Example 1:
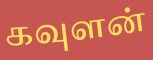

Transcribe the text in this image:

கவுளன்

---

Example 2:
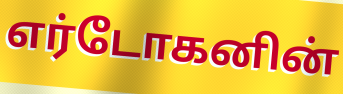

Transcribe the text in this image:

எர்டோகனின்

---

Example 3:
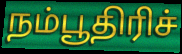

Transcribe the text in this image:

நம்பூதிரிச்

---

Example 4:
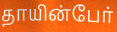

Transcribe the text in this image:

தாயின்பேர்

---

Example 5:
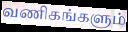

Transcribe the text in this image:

வணிகங்களும்